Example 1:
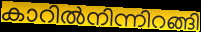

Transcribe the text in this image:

കാറിൽനിന്നിറങ്ങി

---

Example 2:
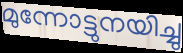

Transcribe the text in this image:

മുന്നോട്ടുനയിച്ചു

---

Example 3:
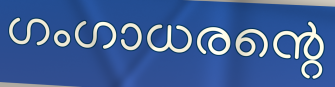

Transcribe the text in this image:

ഗംഗാധരന്റെ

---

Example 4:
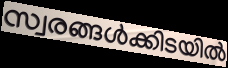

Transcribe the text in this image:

സ്വരങ്ങൾക്കിടയിൽ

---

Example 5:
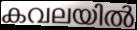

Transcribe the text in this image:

കവലയിൽ